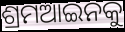
ଶ୍ରମଆଇନକୁ